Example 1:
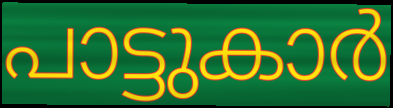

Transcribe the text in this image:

പാട്ടുകാർ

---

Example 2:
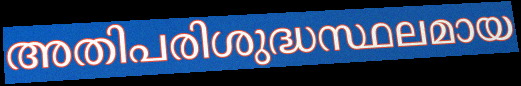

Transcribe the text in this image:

അതിപരിശുദ്ധസ്ഥലമായ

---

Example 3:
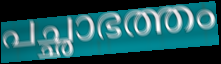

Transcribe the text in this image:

പച്ഛാഭത്തം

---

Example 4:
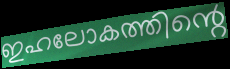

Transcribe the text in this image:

ഇഹലോകത്തിന്റെ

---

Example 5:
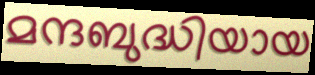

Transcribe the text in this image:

മന്ദബുദ്ധിയായ